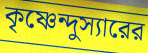
কৃষ্ণেন্দুস্যারের